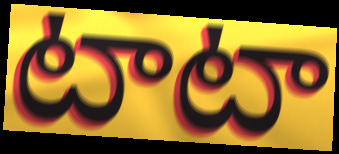
టాటా